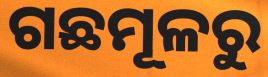
ଗଛମୂଳରୁ